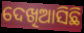
ଦେଖିଆସିଛି